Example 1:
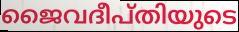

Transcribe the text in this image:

ജൈവദീപ്തിയുടെ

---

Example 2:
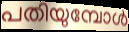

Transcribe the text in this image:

പതിയുമ്പോൾ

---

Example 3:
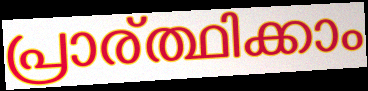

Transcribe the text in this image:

പ്രാര്ത്ഥിക്കാം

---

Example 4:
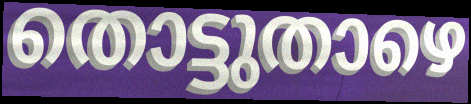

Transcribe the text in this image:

തൊട്ടുതാഴെ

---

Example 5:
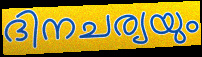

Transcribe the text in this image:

ദിനചര്യയും